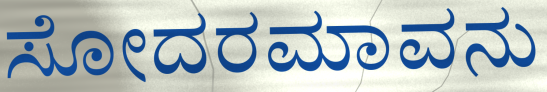
ಸೋದರಮಾವನು